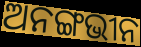
ଅନଙ୍ଗଭୀନ